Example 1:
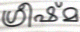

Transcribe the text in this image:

ഗ്രീഷ്മ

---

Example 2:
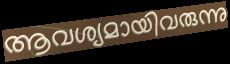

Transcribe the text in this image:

ആവശ്യമായിവരുന്നു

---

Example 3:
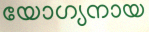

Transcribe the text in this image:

യോഗ്യനായ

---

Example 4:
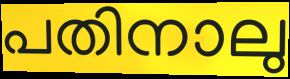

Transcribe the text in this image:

പതിനാലു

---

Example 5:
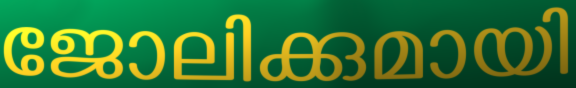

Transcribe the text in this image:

ജോലിക്കുമായി